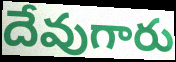
దేవుగారు